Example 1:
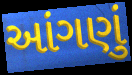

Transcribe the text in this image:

આંગણું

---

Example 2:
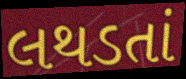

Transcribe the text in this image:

લથડતાં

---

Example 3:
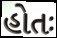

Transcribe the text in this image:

હોતઃ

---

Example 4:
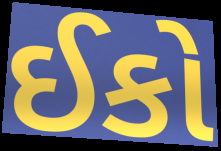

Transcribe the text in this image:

ઈકો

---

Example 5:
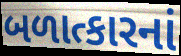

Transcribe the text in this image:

બળાત્કારનાં